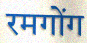
रमगोंग